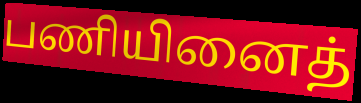
பணியினைத்